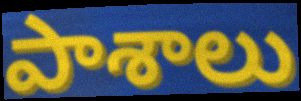
పాశాలు